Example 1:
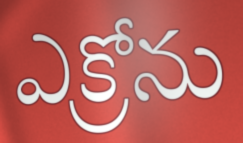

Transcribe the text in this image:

ఎక్రోను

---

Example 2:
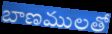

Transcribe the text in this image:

బాణములతో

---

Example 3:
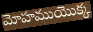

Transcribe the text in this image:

మోహముయొక్క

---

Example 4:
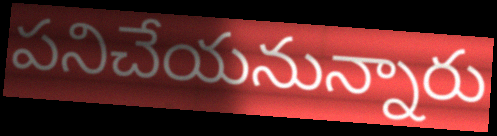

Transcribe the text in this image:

పనిచేయనున్నారు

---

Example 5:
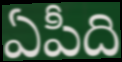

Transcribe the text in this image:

ఏపీది